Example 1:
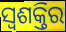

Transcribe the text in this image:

ସ୍ଵଶକ୍ତିର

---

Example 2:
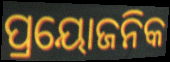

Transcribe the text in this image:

ପ୍ରୟୋଜନିକ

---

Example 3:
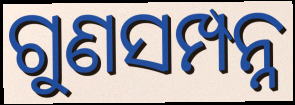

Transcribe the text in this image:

ଗୁଣସମ୍ପନ୍ନ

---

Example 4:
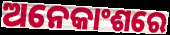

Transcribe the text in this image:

ଅନେକାଂଶରେ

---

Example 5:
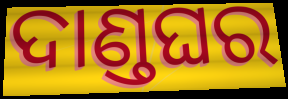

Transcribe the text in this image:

ଦାଣ୍ଡଘର